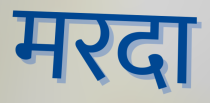
मरदा